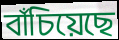
বাঁচিয়েছে